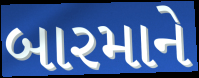
બારમાને